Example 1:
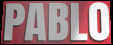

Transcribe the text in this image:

PABLO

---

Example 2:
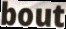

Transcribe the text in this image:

bout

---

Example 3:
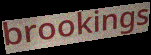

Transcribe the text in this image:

brookings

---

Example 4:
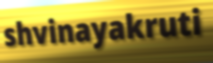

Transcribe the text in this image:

shvinayakruti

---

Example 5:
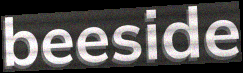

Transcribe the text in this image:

beeside